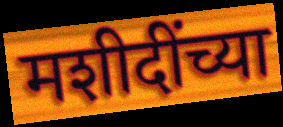
मशीदींच्या